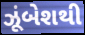
ઝૂંબેશથી